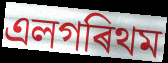
এলগৰিথম